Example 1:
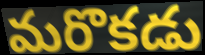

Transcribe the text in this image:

మరొకడు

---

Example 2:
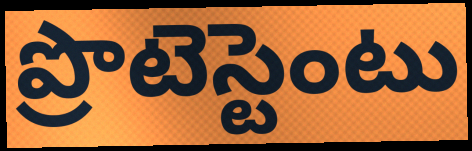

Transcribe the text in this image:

ప్రొటెస్టెంటు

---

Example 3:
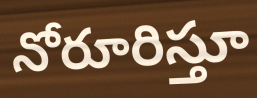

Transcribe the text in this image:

నోరూరిస్తూ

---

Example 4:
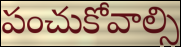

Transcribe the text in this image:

పంచుకోవాల్సి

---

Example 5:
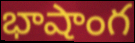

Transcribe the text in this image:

భాషాంగ